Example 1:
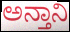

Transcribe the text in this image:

ಅನ್ತಾನಿ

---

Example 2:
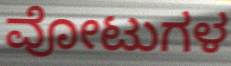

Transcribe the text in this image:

ವೋಟುಗಳ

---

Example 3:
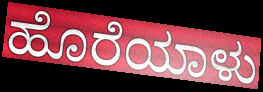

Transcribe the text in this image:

ಹೊರೆಯಾಳು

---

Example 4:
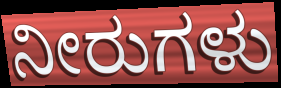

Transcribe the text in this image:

ನೀರುಗಳು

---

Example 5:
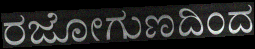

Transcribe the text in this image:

ರಜೋಗುಣದಿಂದ